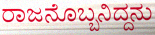
ರಾಜನೊಬ್ಬನಿದ್ದನು